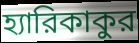
হ্যারিকাকুর